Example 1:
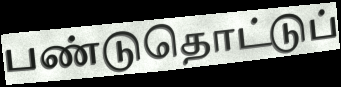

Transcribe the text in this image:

பண்டுதொட்டுப்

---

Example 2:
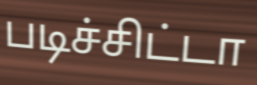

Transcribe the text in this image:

படிச்சிட்டா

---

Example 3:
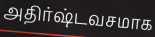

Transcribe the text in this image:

அதிர்ஷ்டவசமாக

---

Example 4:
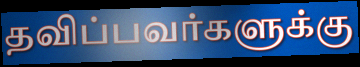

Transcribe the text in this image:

தவிப்பவர்களுக்கு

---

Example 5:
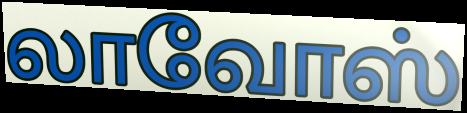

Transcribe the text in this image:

லாவோஸ்